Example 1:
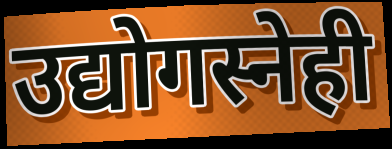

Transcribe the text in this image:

उद्योगस्नेही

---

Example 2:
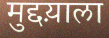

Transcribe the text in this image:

मुद्दय़ाला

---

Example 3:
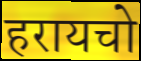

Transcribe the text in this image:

हरायचो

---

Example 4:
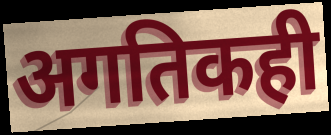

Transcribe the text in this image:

अगतिकही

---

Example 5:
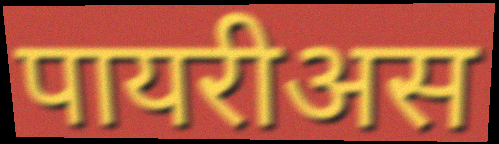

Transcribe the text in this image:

पायरीअस